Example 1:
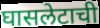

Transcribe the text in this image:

घासलेटाची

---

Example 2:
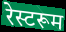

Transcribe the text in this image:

रेस्टरूम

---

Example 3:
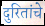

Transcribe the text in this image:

दुरितांचे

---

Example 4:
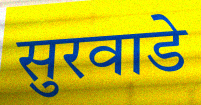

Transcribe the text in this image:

सुरवाडे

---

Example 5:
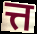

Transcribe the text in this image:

त्त